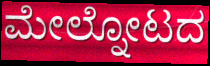
ಮೇಲ್ನೋಟದ